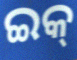
ଇକ୍